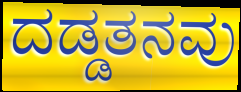
ದಡ್ಡತನವು